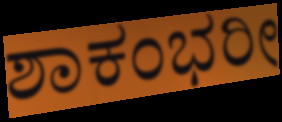
ಶಾಕಂಭರೀ